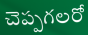
చెప్పగలరో